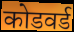
कोडवर्ड